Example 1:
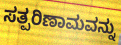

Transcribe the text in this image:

ಸತ್ಪರಿಣಾಮವನ್ನು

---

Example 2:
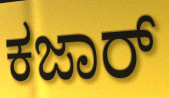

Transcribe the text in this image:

ಕಜಾರ್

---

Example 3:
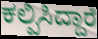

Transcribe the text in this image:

ಕಲ್ಪಿಸಿದ್ದಾರೆ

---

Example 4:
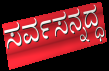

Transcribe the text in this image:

ಸರ್ವಸನ್ನದ್ಧ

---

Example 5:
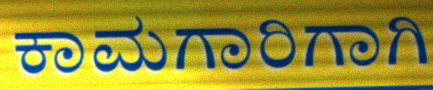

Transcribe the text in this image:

ಕಾಮಗಾರಿಗಾಗಿ